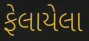
ફેલાયેલા